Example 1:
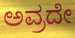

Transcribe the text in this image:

ಅವ್ರದೇ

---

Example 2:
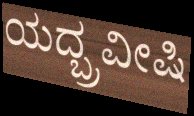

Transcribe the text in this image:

ಯದ್ಬ್ರವೀಷಿ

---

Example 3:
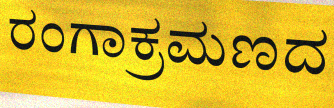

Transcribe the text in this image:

ರಂಗಾಕ್ರಮಣದ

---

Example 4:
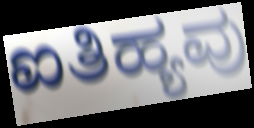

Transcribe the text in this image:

ಐತಿಹ್ಯವು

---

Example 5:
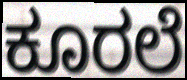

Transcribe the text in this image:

ಕೂರಲೆ